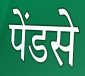
पेंडसे